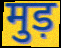
मुड़